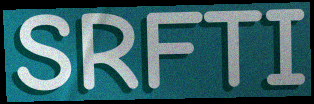
SRFTI